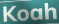
Koah